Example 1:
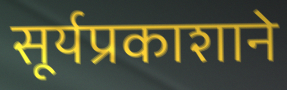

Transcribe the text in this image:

सूर्यप्रकाशाने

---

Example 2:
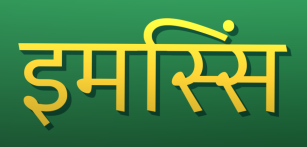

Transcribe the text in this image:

इमस्सिं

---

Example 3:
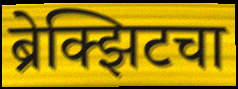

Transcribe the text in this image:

ब्रेक्झिटचा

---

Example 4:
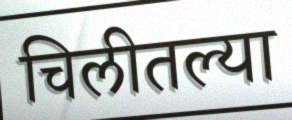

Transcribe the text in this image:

चिलीतल्या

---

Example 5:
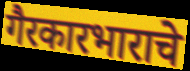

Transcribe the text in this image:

गैरकारभाराचे